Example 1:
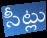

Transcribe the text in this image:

సీట్లు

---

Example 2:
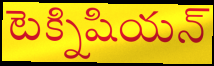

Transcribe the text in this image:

టెక్నిషియన్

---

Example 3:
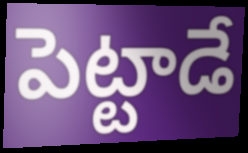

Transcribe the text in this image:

పెట్టాడే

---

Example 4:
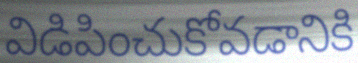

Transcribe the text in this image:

విడిపించుకోవడానికి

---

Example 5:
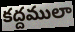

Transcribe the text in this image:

కద్దములా